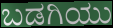
ಬಡಗಿಯು